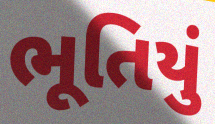
ભૂતિયું